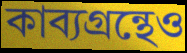
কাব্যগ্রন্থেও